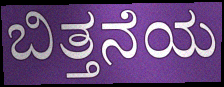
ಬಿತ್ತನೆಯ